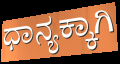
ಧಾನ್ಯಕ್ಕಾಗಿ